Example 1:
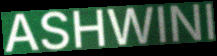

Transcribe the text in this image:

ASHWINI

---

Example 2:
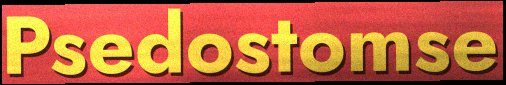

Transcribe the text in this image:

Psedostomse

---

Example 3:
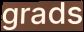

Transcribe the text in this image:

grads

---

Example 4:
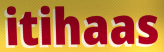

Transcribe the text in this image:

itihaas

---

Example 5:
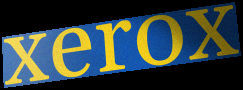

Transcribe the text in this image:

xerox